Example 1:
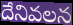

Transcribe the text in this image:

దేనివలన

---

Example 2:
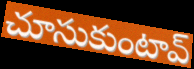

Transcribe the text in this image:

చూసుకుంటావ్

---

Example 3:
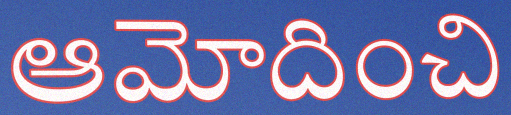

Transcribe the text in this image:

ఆమోదించి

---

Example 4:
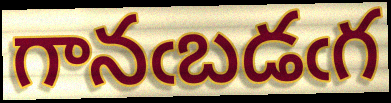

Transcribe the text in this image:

గానఁబడఁగ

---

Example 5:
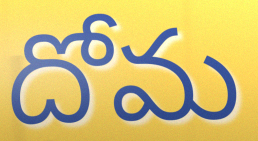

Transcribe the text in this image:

దోమ